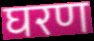
घरण